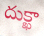
దుక్ఖా